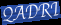
QADRI